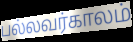
பல்லவர்காலம்